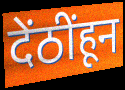
देंठींहून